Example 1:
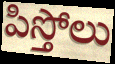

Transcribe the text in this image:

పిస్తోలు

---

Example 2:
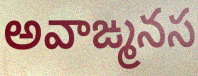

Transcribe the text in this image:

అవాఙ్మనస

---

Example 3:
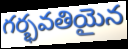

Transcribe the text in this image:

గర్భవతియైన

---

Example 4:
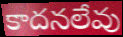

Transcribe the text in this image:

కాదనలేవు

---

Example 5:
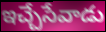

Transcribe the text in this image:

ఇచ్చేసేవాడు